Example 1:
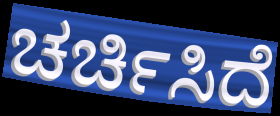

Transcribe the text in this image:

ಚರ್ಚಿಸಿದೆ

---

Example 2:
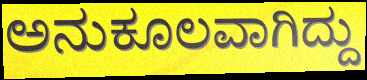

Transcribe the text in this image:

ಅನುಕೂಲವಾಗಿದ್ದು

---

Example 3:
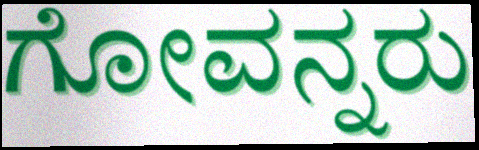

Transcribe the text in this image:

ಗೋವನ್ನರು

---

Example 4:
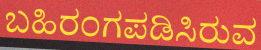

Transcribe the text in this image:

ಬಹಿರಂಗಪಡಿಸಿರುವ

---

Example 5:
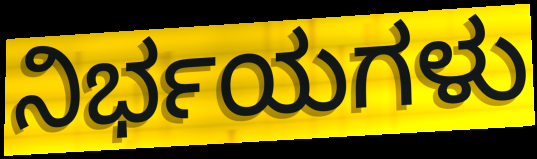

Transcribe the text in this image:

ನಿರ್ಭಯಗಳು